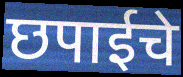
छपाईचे